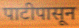
पाटीपासून